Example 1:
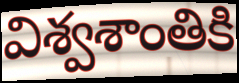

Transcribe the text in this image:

విశ్వశాంతికి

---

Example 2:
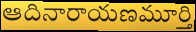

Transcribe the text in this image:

ఆదినారాయణమూర్తి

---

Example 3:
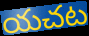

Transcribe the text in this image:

యచట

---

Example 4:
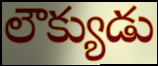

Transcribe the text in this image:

లౌక్యుడు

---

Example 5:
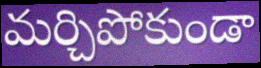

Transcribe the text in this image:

మర్చిపోకుండా